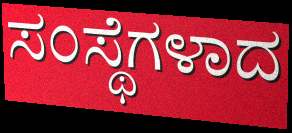
ಸಂಸ್ಥೆಗಳಾದ